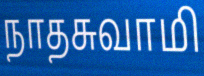
நாதசுவாமி